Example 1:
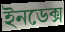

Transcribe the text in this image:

ইনডেক্স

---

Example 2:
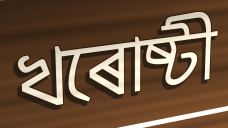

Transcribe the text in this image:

খৰোষ্টী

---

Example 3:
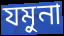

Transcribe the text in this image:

যমুনা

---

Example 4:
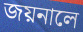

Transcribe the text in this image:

জয়নালে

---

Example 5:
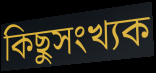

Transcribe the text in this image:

কিছুসংখ্যক